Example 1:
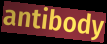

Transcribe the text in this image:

antibody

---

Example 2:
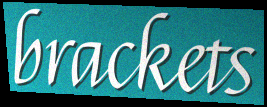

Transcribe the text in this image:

brackets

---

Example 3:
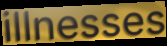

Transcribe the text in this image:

illnesses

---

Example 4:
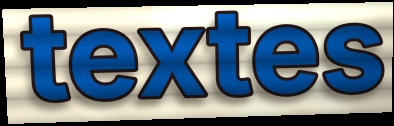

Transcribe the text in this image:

textes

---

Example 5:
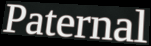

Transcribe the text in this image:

Paternal